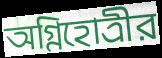
অগ্নিহোত্রীর